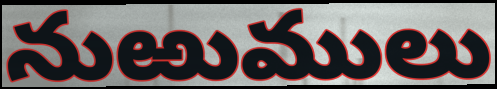
నుఱుములు